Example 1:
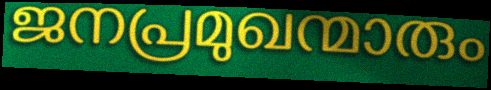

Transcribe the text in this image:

ജനപ്രമുഖന്മാരും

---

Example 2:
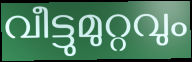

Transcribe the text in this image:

വീട്ടുമുറ്റവും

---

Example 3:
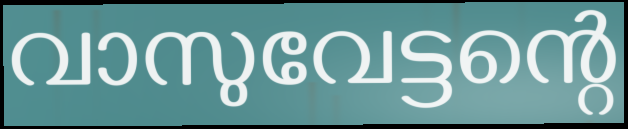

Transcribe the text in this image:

വാസുവേട്ടന്റെ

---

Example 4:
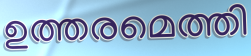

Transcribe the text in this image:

ഉത്തരമെത്തി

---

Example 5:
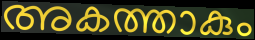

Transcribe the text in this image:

അകത്താകും